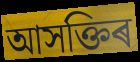
আসক্তিৰ